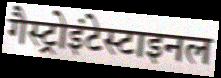
गैस्ट्रोइंटेस्टाइनल